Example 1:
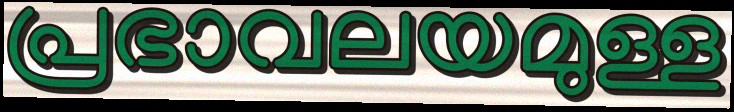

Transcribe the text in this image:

പ്രഭാവലയമുള്ള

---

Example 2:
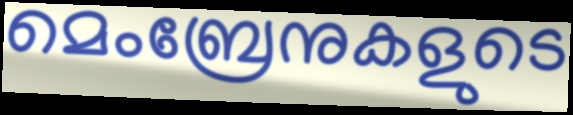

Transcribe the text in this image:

മെംബ്രേനുകളുടെ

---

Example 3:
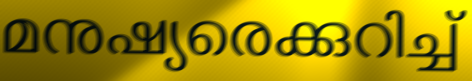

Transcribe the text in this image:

മനുഷ്യരെക്കുറിച്ച്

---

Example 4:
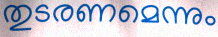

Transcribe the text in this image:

തുടരണമെന്നും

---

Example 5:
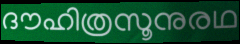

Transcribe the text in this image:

ദൗഹിത്രസൂനുരഥ